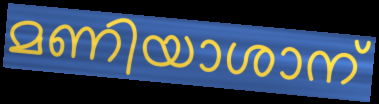
മണിയാശാന്